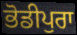
ਭੋਡੀਪੁਰਾ